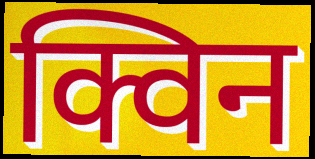
क्विन